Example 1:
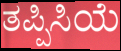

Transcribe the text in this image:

ತಪ್ಪಿಸಿಯೆ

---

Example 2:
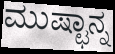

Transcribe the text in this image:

ಮುಷ್ಟಾನ್ನ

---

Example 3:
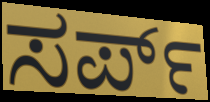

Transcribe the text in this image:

ಸರ್ಪ್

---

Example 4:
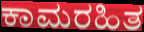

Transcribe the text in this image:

ಕಾಮರಹಿತ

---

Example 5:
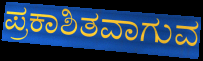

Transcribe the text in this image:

ಪ್ರಕಾಶಿತವಾಗುವ